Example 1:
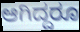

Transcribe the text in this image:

ಆಗಿದ್ದರೂ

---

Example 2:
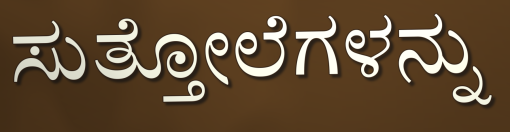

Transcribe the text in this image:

ಸುತ್ತೋಲೆಗಳನ್ನು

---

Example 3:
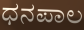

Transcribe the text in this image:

ಧನಪಾಲ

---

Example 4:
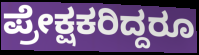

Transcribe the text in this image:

ಪ್ರೇಕ್ಷಕರಿದ್ದರೂ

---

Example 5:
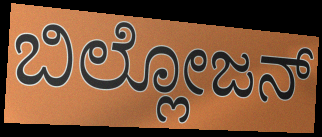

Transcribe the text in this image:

ಬಿಲ್ಲೋಜನ್